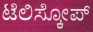
ಟೆಲಿಸ್ಕೋಪ್